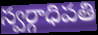
స్వర్గాధిపతి